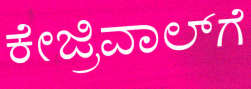
ಕೇಜ್ರಿವಾಲ್‍ಗೆ